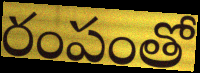
రంపంతో